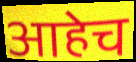
आहेच